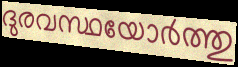
ദുരവസ്ഥയോർത്തു